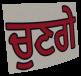
ਚੁਣਗੇ